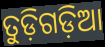
ତୁଡ଼ିଗଡ଼ିଆ